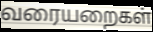
வரையறைகள்